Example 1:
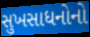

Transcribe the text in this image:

સુખસાધનોનો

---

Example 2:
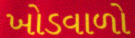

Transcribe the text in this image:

ખોડવાળો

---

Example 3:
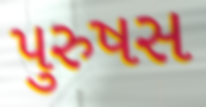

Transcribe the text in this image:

પુરુષસ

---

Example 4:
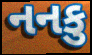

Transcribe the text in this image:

નનકુ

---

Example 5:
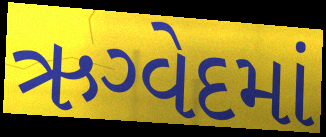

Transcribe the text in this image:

ઋગ્વેદમાં